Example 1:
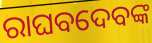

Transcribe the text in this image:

ରାଘବଦେବଙ୍କ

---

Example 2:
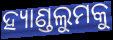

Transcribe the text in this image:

ହ୍ୟାଣ୍ଡଲୁମକୁ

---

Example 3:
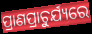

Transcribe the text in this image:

ପ୍ରାଣପ୍ରାଚୁର୍ଯ୍ୟରେ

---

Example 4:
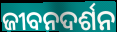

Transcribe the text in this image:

ଜୀବନଦର୍ଶନ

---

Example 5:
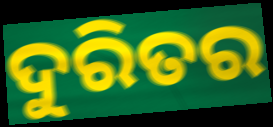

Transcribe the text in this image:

ଦୁରିତର